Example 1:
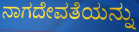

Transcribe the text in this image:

ನಾಗದೇವತೆಯನ್ನು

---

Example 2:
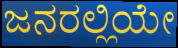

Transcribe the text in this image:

ಜನರಲ್ಲಿಯೇ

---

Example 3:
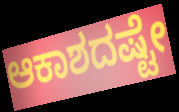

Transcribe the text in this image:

ಆಕಾಶದಷ್ಟೇ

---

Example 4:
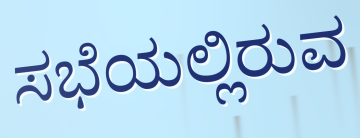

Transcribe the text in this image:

ಸಭೆಯಲ್ಲಿರುವ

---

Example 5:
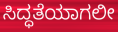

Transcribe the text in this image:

ಸಿದ್ಧತೆಯಾಗಲೀ